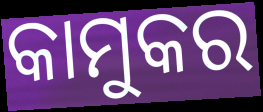
କାମୁକର